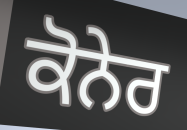
ਕੋਨੇਰ